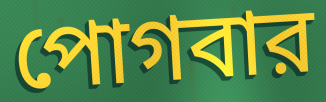
পোগবার